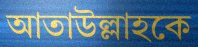
আতাউল্লাহকে